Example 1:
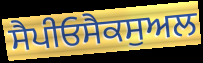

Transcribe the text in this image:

ਸੈਪੀਓਸੈਕਸੁਅਲ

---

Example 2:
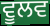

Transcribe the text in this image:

ਵੂਲਵ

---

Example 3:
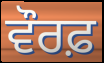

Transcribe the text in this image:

ਵੌਰਫ਼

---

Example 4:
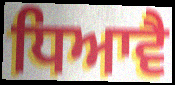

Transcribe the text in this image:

ਧਿਆਵੈ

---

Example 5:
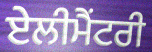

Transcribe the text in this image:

ਏਲੀਮੈਂਟਰੀ